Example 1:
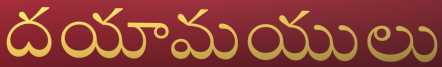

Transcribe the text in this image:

దయామయులు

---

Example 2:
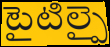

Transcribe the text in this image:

టైటిల్పై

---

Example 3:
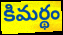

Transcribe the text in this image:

కిమర్థం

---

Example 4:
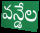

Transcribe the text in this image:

వన్డేల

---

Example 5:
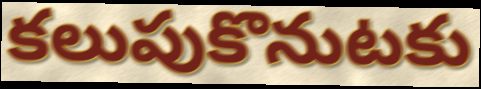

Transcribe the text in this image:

కలుపుకొనుటకు